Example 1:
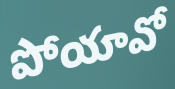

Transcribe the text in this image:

పోయావో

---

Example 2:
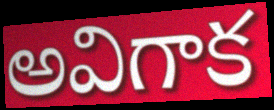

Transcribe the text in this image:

అవిగాక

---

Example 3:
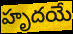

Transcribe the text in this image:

హృదయే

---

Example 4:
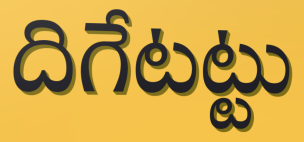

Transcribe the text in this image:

దిగేటట్టు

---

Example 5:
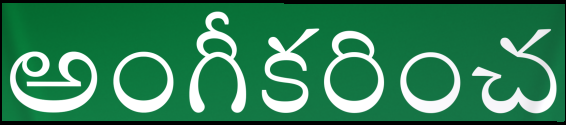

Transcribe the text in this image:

అంగీకరించ